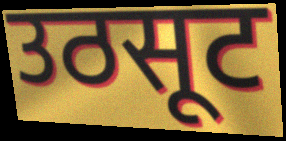
उठसूट